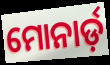
ମୋନାର୍ଡ଼